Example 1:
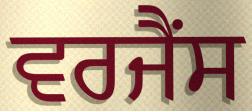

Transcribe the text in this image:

ਵਰਜੈਂਸ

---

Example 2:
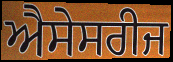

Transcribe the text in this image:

ਐਸੇਸਰੀਜ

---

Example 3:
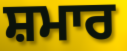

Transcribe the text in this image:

ਸ਼ਮਾਰ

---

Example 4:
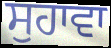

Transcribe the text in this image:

ਸੁਹਾਵਾ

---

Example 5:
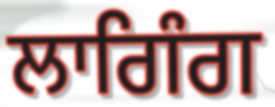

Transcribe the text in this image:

ਲਾਗਿੰਗ